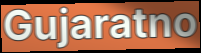
Gujaratno